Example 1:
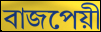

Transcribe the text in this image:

বাজপেয়ী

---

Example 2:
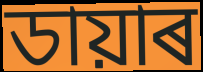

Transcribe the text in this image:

ডায়াৰ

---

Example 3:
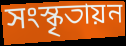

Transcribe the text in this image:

সংস্কৃতায়ন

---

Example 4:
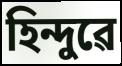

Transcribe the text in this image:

হিন্দুৱে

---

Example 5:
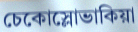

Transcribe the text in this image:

চেকোস্লোভাকিয়া